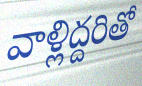
వాళ్లిద్దరితో